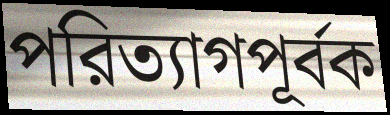
পরিত্যাগপূর্বক